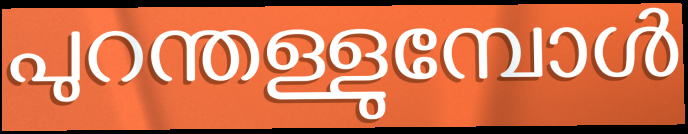
പുറന്തള്ളുമ്പോൾ